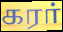
கரர்